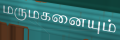
மருமகனையும்